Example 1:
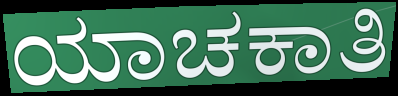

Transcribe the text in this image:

ಯಾಚಕಾತಿ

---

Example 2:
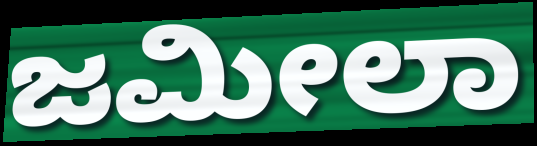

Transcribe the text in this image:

ಜಮೀಲಾ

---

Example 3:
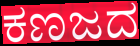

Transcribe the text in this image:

ಕಣಜದ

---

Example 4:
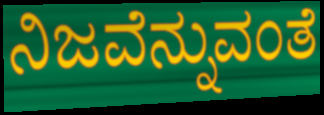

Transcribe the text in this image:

ನಿಜವೆನ್ನುವಂತೆ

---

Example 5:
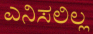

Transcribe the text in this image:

ಎನಿಸಲಿಲ್ಲ